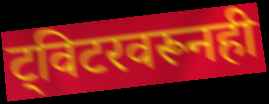
ट्विटरवरूनही